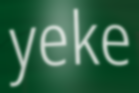
yeke